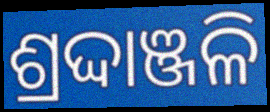
ଶ୍ରଦ୍ଦାଞ୍ଜଳି